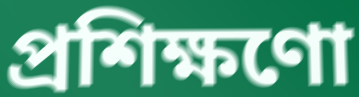
প্ৰশিক্ষণো